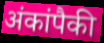
अंकांपैकी